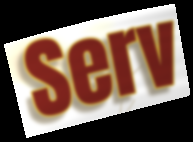
Serv